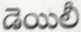
డెయిలీ